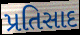
પ્રતિસાદ